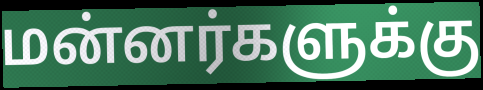
மன்னர்களுக்கு